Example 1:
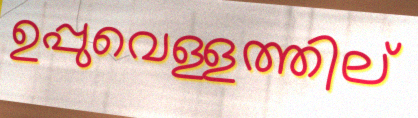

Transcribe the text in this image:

ഉപ്പുവെള്ളത്തില്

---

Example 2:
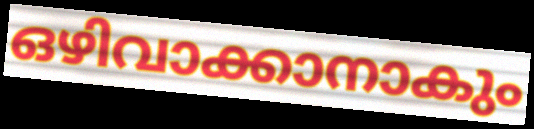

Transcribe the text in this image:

ഒഴിവാക്കാനാകും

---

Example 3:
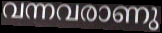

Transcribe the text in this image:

വന്നവരാണു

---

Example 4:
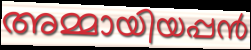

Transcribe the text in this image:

അമ്മായിയപ്പൻ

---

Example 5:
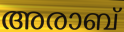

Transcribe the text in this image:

അരാബ്